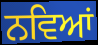
ਨਵਿਆਂ